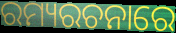
ରମ୍ୟରଚନାରେ